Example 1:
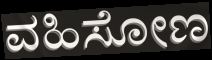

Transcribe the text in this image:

ವಹಿಸೋಣ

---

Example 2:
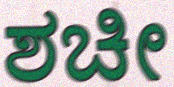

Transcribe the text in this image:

ಶಚೀ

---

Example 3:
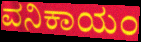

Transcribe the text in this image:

ವನಿಕಾಯಂ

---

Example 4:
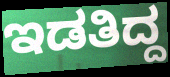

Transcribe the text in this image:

ಇಡತಿದ್ದ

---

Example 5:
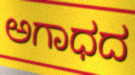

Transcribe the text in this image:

ಅಗಾಧದ